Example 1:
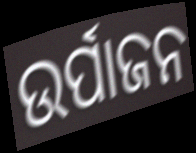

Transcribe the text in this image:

ଉର୍ପାଜନ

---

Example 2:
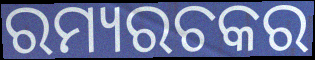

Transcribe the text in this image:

ରମ୍ୟରଚକର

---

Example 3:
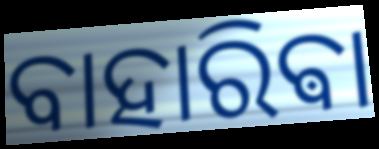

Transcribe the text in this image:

ବାହାରିଵା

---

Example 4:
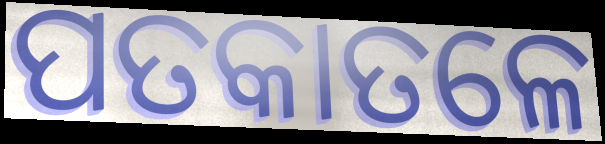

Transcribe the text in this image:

ପତକାତଳେ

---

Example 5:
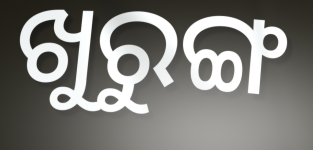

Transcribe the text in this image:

ଖୁରୁଙ୍ଗ